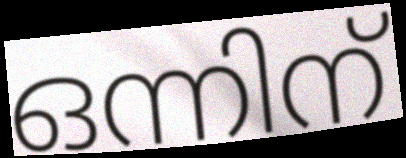
ഒന്നിന്